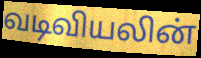
வடிவியலின்